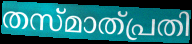
തസ്മാത്പ്രതി